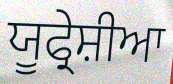
ਯੂਫ੍ਰੇਸ਼ੀਆ